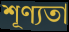
শূণ্যতা